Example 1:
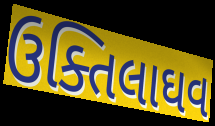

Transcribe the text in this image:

ઉક્તિલાઘવ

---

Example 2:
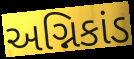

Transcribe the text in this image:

અગ્નિકાંડ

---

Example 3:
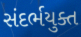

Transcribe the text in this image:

સંદર્ભયુક્ત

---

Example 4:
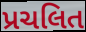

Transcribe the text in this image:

પ્રચલિત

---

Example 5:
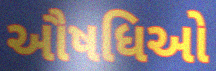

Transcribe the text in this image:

ઔષધિઓ